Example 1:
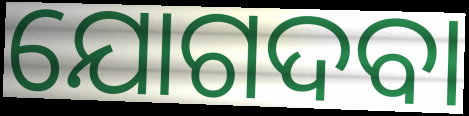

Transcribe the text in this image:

ଯୋଗଦବା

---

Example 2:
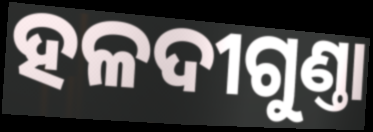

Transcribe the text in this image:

ହଳଦୀଗୁଣ୍ତା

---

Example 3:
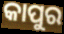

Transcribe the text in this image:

କାପୁର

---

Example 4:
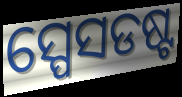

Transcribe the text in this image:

ସ୍ପେସଡଷ୍ଟ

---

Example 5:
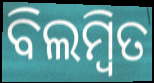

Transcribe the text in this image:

ବିଲମ୍ବିତ